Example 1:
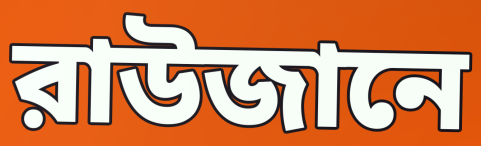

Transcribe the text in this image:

রাউজানে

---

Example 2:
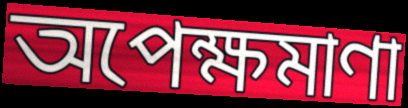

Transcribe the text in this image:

অপেক্ষমাণা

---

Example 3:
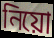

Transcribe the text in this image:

নিয়ো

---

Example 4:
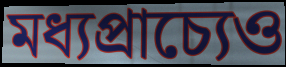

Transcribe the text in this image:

মধ্যপ্রাচ্যেও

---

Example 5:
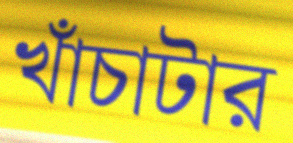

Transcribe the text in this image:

খাঁচাটার